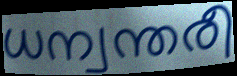
ധന്വന്തരീ